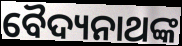
ବୈଦ୍ୟନାଥଙ୍କ